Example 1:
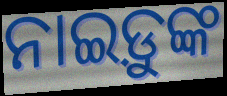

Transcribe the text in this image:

ନାଇଡ଼ୁଙ୍କ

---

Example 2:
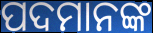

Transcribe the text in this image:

ପଦମାନଙ୍କ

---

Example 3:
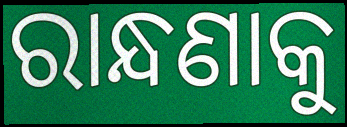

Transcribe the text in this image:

ରାନ୍ଧଣାକୁ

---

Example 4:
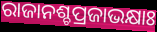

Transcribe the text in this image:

ରାଜାନଶ୍ଚପ୍ରଜାଭକ୍ଷାଃ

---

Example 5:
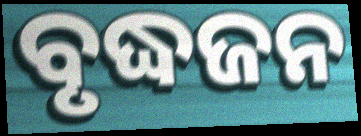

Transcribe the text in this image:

ବୃଦ୍ଧଜନ